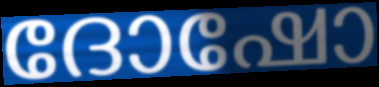
ദോഷോ